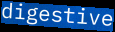
digestive